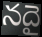
నదై